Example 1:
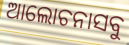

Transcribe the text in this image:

ଆଲୋଚନାସବୁ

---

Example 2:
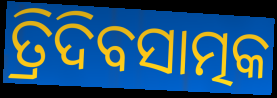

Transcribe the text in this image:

ତ୍ରିଦିବସାତ୍ମକ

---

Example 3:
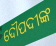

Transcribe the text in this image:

ଦୌପଦୀଙ୍କ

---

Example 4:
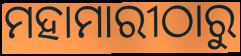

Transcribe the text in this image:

ମହାମାରୀଠାରୁ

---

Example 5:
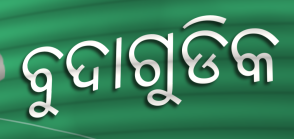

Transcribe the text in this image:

ବୁଦାଗୁଡିକ